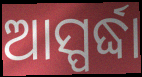
ଆସ୍ପର୍ଦ୍ଧା